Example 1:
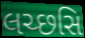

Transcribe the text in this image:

લચ્છસિ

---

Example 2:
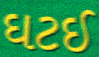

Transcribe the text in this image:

ઘટઈ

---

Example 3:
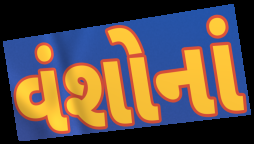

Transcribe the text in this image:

વંશોનાં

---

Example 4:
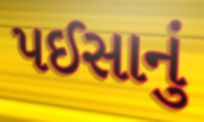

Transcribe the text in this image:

પઈસાનું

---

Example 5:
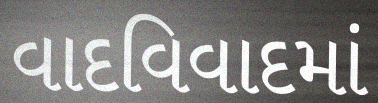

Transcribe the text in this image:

વાદવિવાદમાં